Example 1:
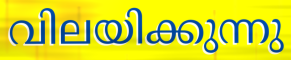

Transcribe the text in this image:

വിലയിക്കുന്നു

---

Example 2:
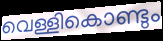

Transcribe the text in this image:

വെള്ളികൊണ്ടും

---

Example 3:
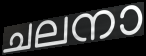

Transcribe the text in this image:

ചലനാ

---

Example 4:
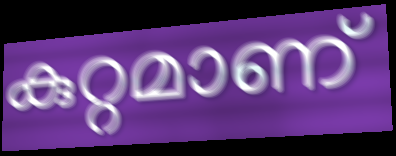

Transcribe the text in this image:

കുറ്റമാണ്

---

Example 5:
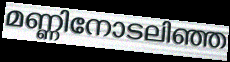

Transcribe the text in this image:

മണ്ണിനോടലിഞ്ഞ